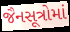
જૈનસૂત્રોમાં